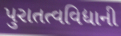
પુરાતત્વવિદ્યાની